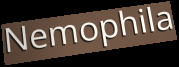
Nemophila